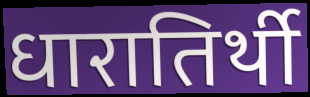
धारातिर्थी